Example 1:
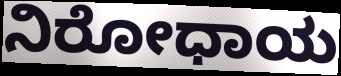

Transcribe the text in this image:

ನಿರೋಧಾಯ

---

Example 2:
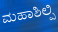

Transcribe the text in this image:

ಮಹಾಶಿಲ್ಪಿ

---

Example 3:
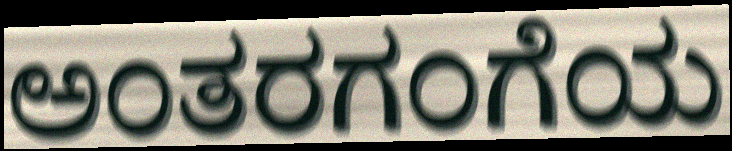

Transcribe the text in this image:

ಅಂತರಗಂಗೆಯ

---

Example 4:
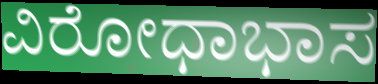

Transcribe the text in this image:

ವಿರೋಧಾಭಾಸ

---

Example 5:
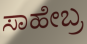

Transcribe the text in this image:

ಸಾಹೇಬ್ರ